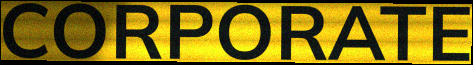
CORPORATE